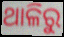
ଥାଳିରୁ